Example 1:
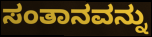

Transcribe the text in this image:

ಸಂತಾನವನ್ನು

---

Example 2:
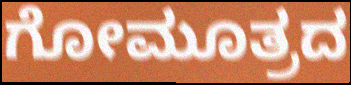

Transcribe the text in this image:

ಗೋಮೂತ್ರದ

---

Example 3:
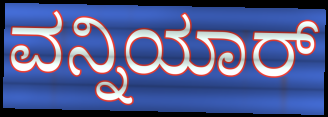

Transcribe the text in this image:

ವನ್ನಿಯಾರ್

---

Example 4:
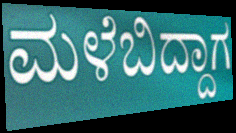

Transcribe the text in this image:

ಮಳೆಬಿದ್ದಾಗ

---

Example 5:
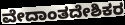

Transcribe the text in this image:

ವೇದಾಂತದೇಶಿಕರ